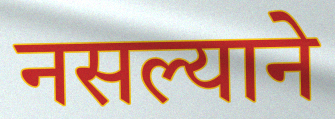
नसल्‍याने